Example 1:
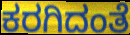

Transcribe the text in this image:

ಕರಗಿದಂತೆ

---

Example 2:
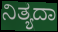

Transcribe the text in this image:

ನಿತ್ಯದಾ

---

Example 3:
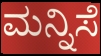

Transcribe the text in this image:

ಮನ್ನಿಸೆ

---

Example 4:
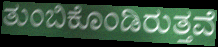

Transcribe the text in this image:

ತುಂಬಿಕೊಂಡಿರುತ್ತವೆ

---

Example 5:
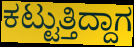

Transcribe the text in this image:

ಕಟ್ಟುತ್ತಿದ್ದಾಗ